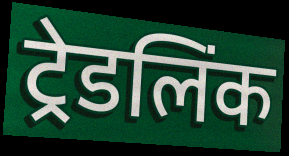
ट्रेडलिंक